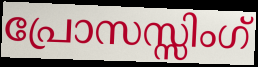
പ്രോസസ്സിംഗ്